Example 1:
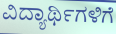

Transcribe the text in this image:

ವಿದ್ಯಾರ್ಥಿಗಳಿಗೆ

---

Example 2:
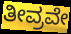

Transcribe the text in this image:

ತೀವ್ರವೇ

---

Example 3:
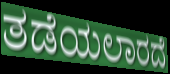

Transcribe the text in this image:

ತಡೆಯಲಾರದೆ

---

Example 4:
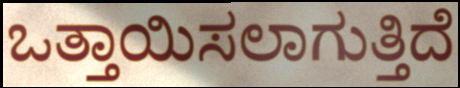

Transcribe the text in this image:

ಒತ್ತಾಯಿಸಲಾಗುತ್ತಿದೆ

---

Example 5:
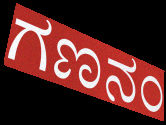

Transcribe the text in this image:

ಗಣನಂ